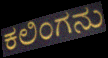
ಕಲಿಂಗನು